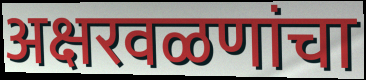
अक्षरवळणांचा